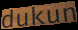
dukun